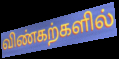
விண்கற்களில்